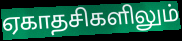
ஏகாதசிகளிலும்